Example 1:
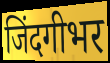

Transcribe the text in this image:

जिंदगीभर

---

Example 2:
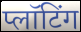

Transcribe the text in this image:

प्लॉटिंग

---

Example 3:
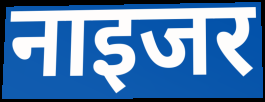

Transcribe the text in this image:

नाइजर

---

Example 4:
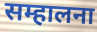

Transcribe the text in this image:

सम्हालना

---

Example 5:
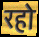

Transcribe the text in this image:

रहो